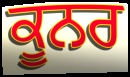
ਕੂਨਰ